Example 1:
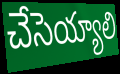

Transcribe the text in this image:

చేసెయ్యాలి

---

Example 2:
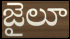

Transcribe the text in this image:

జైలూ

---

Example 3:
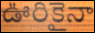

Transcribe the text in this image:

ఊరికైనా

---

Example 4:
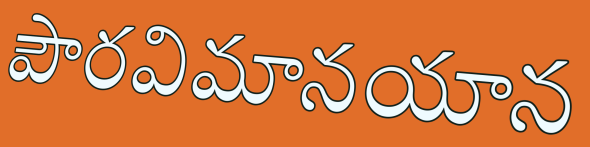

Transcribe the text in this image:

పౌరవిమానయాన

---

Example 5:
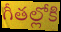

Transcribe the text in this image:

గీతల్లోకి